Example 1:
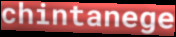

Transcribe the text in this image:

chintanege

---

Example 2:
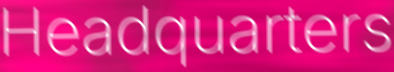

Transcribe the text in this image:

Headquarters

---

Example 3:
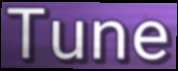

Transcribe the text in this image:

Tune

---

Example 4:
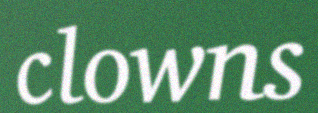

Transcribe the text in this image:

clowns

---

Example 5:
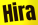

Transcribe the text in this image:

Hira